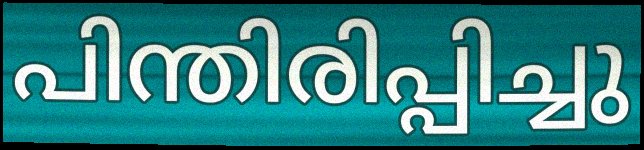
പിന്തിരിപ്പിച്ചു